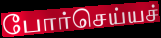
போர்செய்யச்